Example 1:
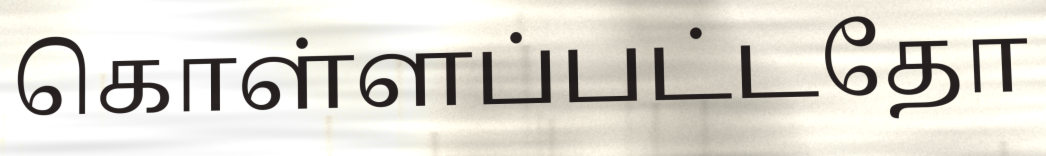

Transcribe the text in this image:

கொள்ளப்பட்டதோ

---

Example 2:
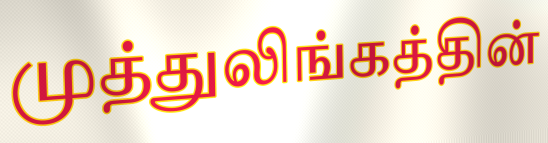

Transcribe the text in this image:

முத்துலிங்கத்தின்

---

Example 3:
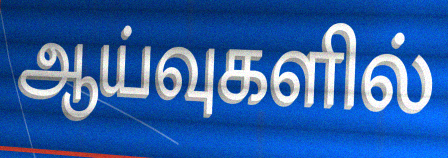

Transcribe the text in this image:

ஆய்வுகளில்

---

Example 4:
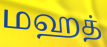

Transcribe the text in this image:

மஹத்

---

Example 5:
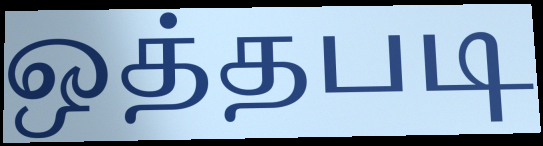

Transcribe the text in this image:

ஒத்தபடி